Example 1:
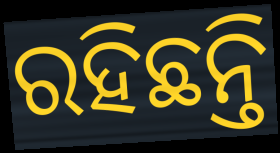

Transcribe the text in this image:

ରହିଛନ୍ତି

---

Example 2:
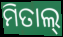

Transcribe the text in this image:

ମିତାଲ୍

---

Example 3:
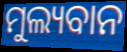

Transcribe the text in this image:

ମୁଲ୍ୟବାନ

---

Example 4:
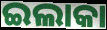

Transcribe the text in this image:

ଇଲାକା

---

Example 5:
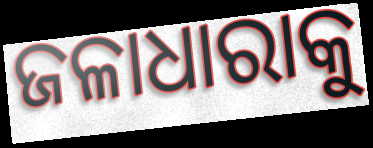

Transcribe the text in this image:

ଜଳାଧାରାକୁ